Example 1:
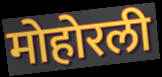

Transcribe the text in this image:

मोहोरली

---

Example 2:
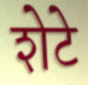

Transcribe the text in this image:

शेटे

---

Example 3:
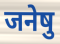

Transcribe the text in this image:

जनेषु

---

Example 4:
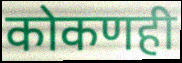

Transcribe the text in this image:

कोकणही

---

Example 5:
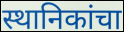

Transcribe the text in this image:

स्थानिकांचा